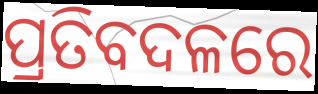
ପ୍ରତିବଦଳରେ